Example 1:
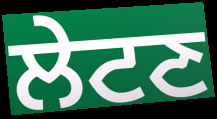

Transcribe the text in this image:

ਲੇਟਣ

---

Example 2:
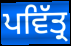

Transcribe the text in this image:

ਪਵਿੱਤ੍ਰ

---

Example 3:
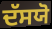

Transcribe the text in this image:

ਦੱਸਯੋ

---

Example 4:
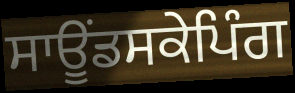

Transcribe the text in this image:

ਸਾਊਂਡਸਕੇਪਿੰਗ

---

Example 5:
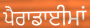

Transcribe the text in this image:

ਪੈਰਾਡਾਈਮਾਂ